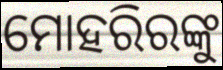
ମୋହରିରଙ୍କୁ